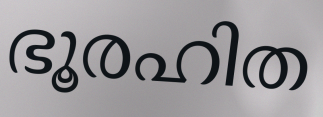
ഭൂരഹിത